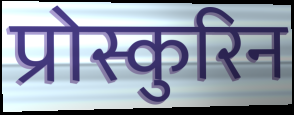
प्रोस्कुरिन